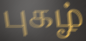
புகழ்